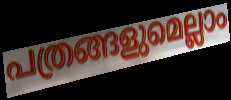
പത്രങ്ങളുമെല്ലാം